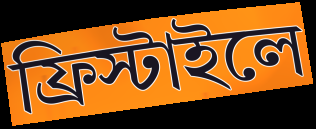
ফ্রিস্টাইলে